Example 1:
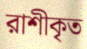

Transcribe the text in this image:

রাশীকৃত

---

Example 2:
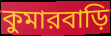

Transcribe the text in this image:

কুমারবাড়ি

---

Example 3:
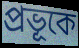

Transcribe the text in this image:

প্রভূকে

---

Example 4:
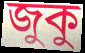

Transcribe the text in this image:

জুকু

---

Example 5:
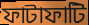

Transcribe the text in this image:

ফাটাফাটি